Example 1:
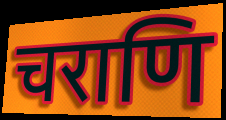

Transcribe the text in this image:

चराणि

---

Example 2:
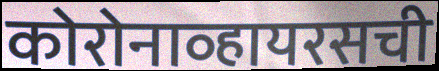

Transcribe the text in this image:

कोरोनाव्हायरसची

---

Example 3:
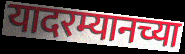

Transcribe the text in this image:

यादरम्यानच्या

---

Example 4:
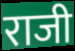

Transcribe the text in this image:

राजी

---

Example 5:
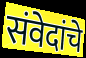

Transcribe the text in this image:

संवेदांचे